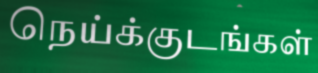
நெய்க்குடங்கள்